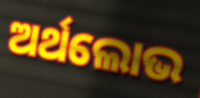
ଅର୍ଥଲୋଭ